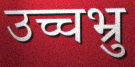
उच्चभ्रु